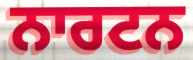
ਨਾਰਟਨ